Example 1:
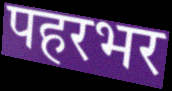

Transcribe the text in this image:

पहरभर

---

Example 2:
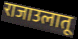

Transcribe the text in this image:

राजाउलातू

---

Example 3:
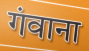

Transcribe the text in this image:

गंवाना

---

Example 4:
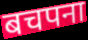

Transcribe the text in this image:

बचपना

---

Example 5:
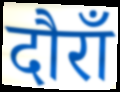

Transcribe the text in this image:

दौराँ